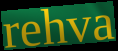
rehva